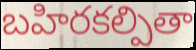
బహిరకల్పితా